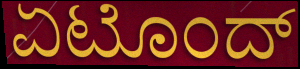
ಏಟೊಂದ್